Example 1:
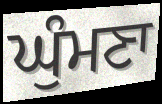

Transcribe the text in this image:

ਘੁੰਮਣਾ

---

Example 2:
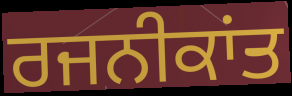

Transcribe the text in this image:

ਰਜਨੀਕਾਂਤ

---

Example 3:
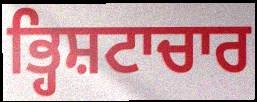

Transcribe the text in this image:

ਭ੍ਹਿਸ਼ਟਾਚਾਰ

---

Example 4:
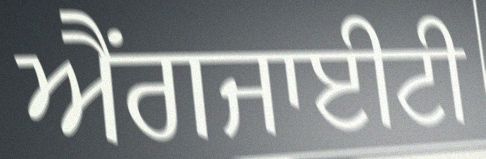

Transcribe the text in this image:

ਐਂਗਜਾਈਟੀ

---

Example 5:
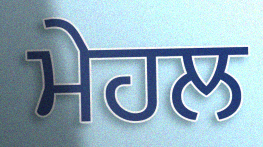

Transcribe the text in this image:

ਮੇਹਲ